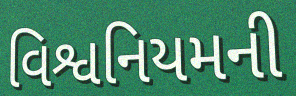
વિશ્વનિયમની